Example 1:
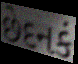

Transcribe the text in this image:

છેદનકં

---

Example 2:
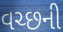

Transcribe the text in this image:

વચ્છની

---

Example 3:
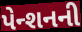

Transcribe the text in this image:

પેન્શનની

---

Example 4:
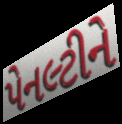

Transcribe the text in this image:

પેનલ્ટીને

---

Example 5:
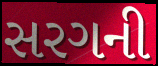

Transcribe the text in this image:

સરગની